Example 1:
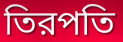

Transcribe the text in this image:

তিরপতি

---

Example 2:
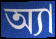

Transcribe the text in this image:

অ্যা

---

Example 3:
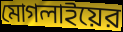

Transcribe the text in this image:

মোগলাইয়ের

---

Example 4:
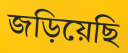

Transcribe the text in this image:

জড়িয়েছি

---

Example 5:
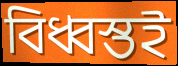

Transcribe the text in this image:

বিধ্বস্তই